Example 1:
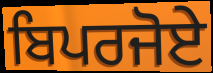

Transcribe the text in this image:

ਬਿਪਰਜੋਏ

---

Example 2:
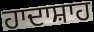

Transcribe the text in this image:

ਹਾਦਾਸ਼ਾਹ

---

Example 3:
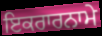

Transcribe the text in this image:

ਇਕਰਾਰਨਾਮੇ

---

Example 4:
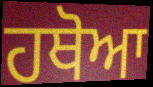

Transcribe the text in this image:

ਹਥੋਆ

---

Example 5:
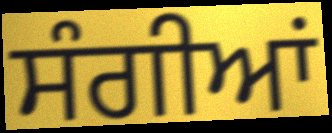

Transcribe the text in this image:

ਸੰਗੀਆਂ